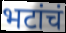
भटांचं